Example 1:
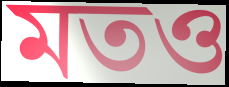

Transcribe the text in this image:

মতও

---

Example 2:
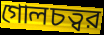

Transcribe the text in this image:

গোলচত্বর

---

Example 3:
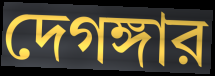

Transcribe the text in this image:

দেগঙ্গার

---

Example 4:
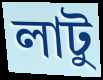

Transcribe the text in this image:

লাটু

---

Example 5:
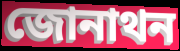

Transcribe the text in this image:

জোনাথন